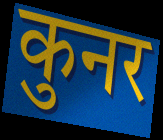
कुनर